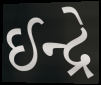
ઈન્દ્રે